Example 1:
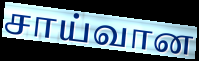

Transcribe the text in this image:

சாய்வான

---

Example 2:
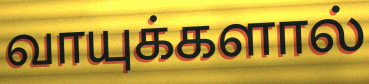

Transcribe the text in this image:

வாயுக்களால்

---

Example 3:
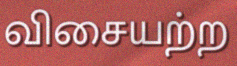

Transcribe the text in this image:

விசையற்ற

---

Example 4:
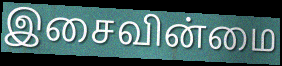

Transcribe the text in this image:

இசைவின்மை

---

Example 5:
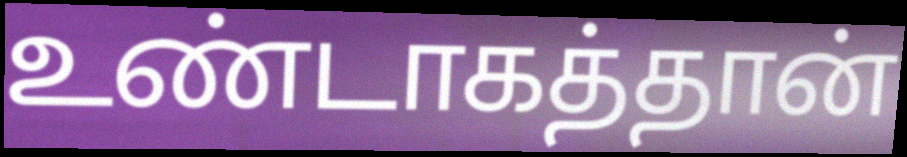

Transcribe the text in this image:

உண்டாகத்தான்